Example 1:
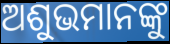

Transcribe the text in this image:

ଅଶୁଭମାନଙ୍କୁ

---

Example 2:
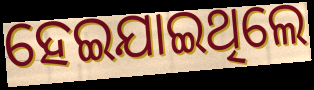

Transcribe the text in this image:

ହେଇଯାଇଥିଲେ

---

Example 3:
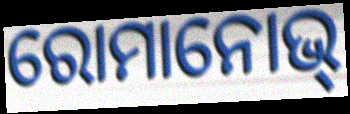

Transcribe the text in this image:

ରୋମାନୋଭ୍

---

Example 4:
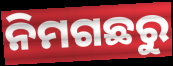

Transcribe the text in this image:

ନିମଗଛରୁ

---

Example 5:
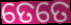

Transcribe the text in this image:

ତେତେ